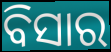
ବିସାର